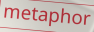
metaphor